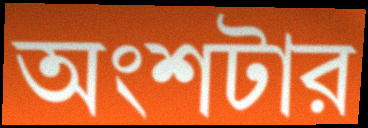
অংশটার